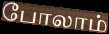
போலாம்